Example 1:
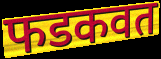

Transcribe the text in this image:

फडकवत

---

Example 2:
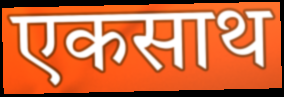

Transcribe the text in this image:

एकसाथ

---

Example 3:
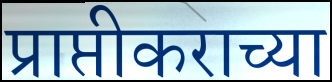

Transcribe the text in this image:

प्राप्तीकराच्या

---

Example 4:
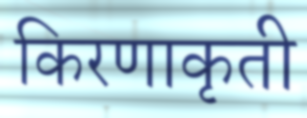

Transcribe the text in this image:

किरणाकृती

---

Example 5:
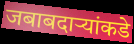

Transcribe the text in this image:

जबाबदाऱ्यांकडे